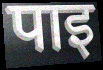
पाइ